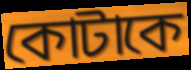
কোটাকে